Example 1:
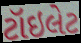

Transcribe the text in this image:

ટૉઇલેટ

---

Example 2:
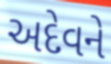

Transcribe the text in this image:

અદેવને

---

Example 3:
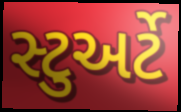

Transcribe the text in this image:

સ્ટુઅર્ટે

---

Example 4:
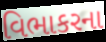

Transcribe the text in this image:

વિભાકરના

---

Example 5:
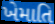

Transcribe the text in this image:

ખેમાતિ